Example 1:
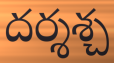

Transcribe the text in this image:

దర్శశ్చ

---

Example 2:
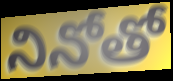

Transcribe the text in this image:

నినోతో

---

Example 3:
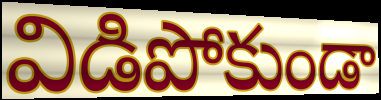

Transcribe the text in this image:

విడిపోకుండా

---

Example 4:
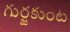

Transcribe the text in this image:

గుర్జకుంట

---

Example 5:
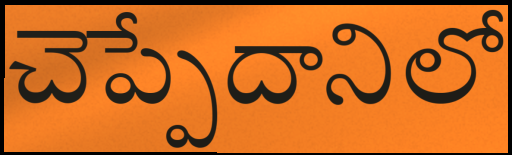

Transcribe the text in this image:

చెప్పేదానిలో